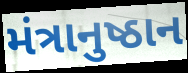
મંત્રાનુષ્ઠાન